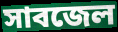
সাবজেল